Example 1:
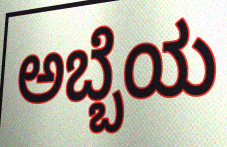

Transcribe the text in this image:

ಅಬ್ಬೆಯ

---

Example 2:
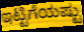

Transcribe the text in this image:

ಇಟ್ಟಿಗೆಯಷ್ಟು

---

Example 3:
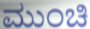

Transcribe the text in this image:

ಮುಂಚಿ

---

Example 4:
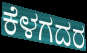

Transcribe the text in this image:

ಕೆಳಗದರ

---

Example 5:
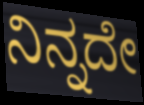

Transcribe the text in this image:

ನಿನ್ನದೇ